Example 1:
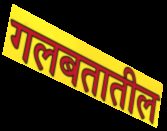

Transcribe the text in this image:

गलबतातील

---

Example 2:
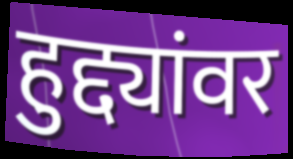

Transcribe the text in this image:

हुद्द्यांवर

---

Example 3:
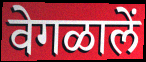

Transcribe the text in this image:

वेगळालें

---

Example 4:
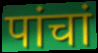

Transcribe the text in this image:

पांचां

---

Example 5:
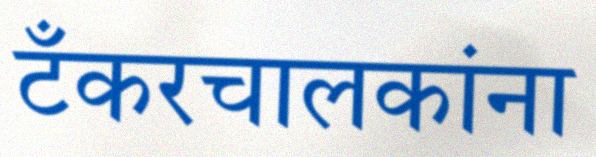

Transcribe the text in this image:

टँकरचालकांना